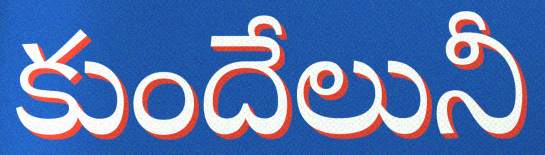
కుందేలునీ